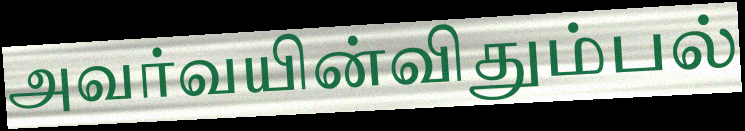
அவர்வயின்விதும்பல்